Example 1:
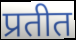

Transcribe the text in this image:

प्रतीत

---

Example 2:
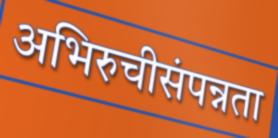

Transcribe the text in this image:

अभिरुचीसंपन्नता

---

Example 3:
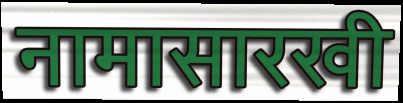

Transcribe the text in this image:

नामासारखी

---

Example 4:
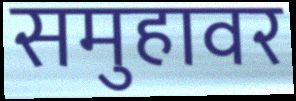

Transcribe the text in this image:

समुहावर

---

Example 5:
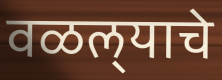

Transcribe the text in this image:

वळल्याचे